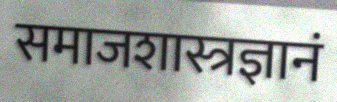
समाजशास्त्रज्ञानं